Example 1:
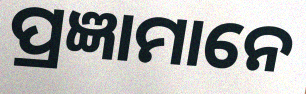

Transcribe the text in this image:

ପ୍ରଜ୍ଞାମାନେ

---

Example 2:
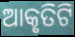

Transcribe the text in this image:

ଆକୃତିଟି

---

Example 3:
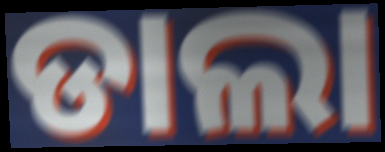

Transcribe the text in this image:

ଡାଲା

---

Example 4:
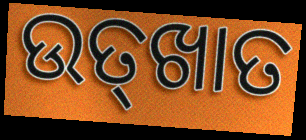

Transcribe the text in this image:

ଉତ୍‌ଖାତ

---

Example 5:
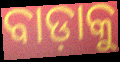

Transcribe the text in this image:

ବାଡ଼ାକୁ